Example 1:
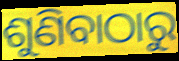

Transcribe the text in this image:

ଶୁଣିବାଠାରୁ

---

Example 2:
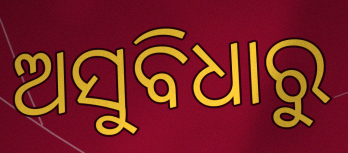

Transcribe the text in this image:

ଅସୁବିଧାରୁ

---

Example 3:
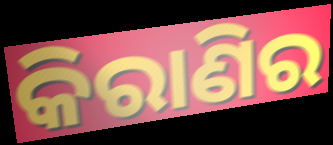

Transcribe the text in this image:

କିରାଣିର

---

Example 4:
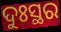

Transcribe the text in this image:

ଦୁଃସ୍ଥର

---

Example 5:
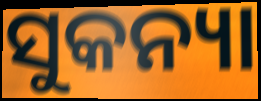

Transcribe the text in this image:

ସୁକନ୍ୟା